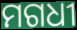
ମଗଧୀ